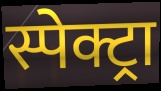
स्पेक्ट्रा